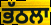
ਭੱਠਲਾ